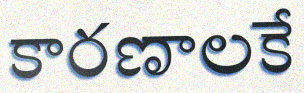
కారణాలకే